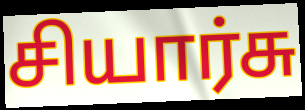
சியார்சு